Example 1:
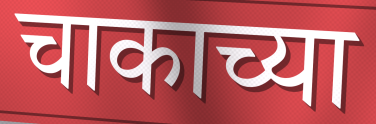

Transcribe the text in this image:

चाकाच्या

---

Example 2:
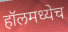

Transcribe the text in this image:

हॉलमध्येच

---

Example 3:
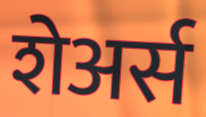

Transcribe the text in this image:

शेअर्स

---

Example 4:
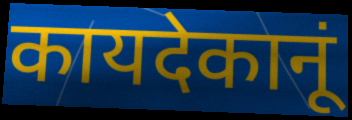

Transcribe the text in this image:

कायदेकानूं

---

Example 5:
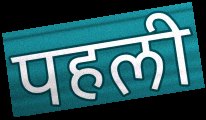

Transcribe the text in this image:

पहली